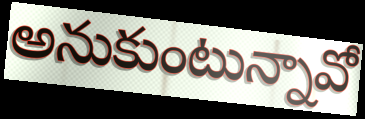
అనుకుంటున్నావో